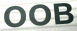
OOB